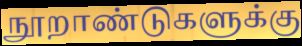
நூறாண்டுகளுக்கு